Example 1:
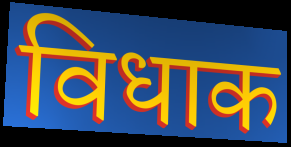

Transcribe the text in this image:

विधाक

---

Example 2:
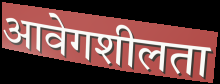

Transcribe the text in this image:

आवेगशीलता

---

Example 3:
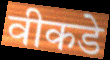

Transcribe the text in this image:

वीकडे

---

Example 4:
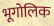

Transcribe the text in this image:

भूगोलिक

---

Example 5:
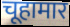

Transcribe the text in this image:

चूहामार